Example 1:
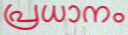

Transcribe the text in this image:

പ്രധാനം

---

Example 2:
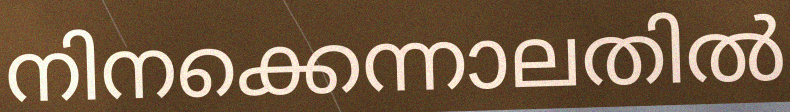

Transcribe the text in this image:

നിനക്കെന്നാലതിൽ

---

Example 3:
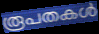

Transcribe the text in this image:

രൂപതകൾ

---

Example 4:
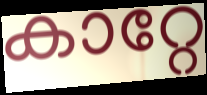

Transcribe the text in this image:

കാറ്റേ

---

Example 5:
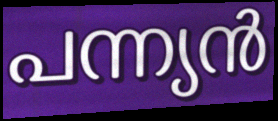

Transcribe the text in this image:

പന്ന്യൻ